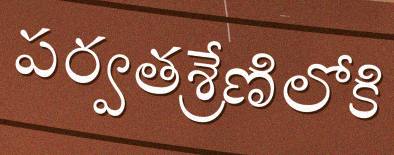
పర్వతశ్రేణిలోకి